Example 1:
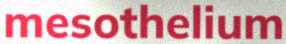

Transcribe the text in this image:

mesothelium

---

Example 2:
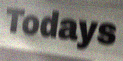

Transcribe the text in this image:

Todays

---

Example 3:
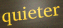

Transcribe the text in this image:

quieter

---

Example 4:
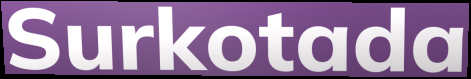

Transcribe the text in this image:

Surkotada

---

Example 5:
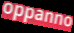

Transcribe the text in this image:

oppanno